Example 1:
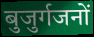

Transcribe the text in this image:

बुजुर्गजनों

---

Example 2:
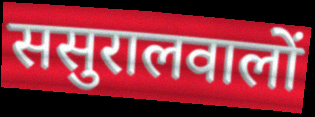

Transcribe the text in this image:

ससुरालवालों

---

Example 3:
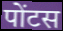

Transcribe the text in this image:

पोंटस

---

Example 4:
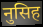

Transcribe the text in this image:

नुसिह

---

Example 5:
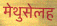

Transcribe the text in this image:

मेथुसेलह